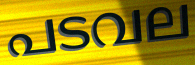
പടവല